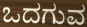
ಒದಗುವ